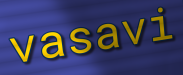
vasavi